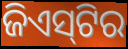
ଜିଏସ୍‌ଟିର